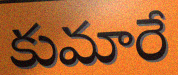
కుమారే